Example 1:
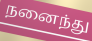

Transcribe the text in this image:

நனைந்து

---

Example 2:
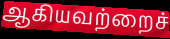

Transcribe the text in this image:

ஆகியவற்றைச்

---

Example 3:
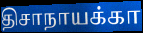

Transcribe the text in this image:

திசாநாயக்கா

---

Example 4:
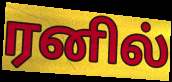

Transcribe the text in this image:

ரனில்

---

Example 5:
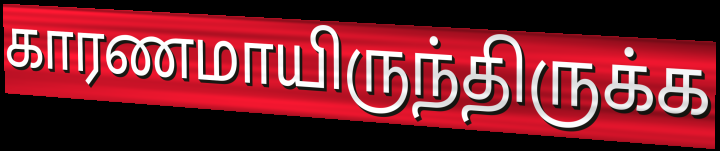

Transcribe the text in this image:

காரணமாயிருந்திருக்க